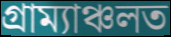
গ্ৰাম্যাঞ্চলত